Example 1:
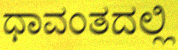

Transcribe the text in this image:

ಧಾವಂತದಲ್ಲಿ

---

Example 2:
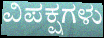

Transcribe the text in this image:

ವಿಪಕ್ಷಗಳು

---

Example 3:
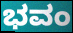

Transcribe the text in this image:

ಭವಂ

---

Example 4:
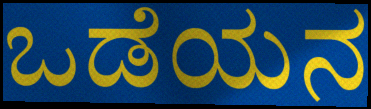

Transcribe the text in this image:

ಒಡೆಯನ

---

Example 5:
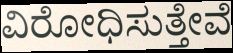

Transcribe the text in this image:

ವಿರೋಧಿಸುತ್ತೇವೆ